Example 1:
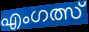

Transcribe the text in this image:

എംഗത്സ്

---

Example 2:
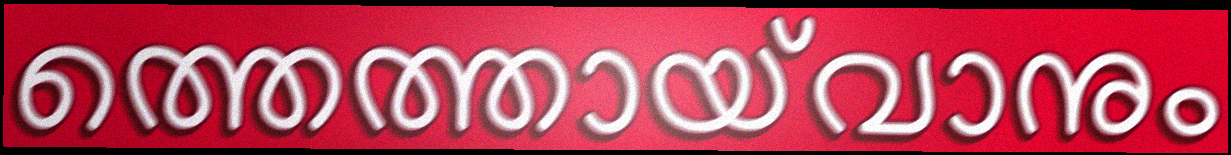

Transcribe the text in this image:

ത്തെത്തായ്‌വാനും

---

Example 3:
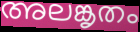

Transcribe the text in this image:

അലങ്കൃതം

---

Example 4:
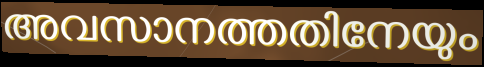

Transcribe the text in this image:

അവസാനത്തതിനേയും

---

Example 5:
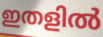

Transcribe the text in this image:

ഇതളിൽ